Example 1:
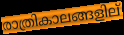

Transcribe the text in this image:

രാത്രികാലങ്ങളില്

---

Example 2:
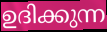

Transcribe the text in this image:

ഉദിക്കുന്ന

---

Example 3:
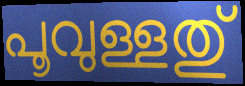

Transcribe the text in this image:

പൂവുള്ളതു്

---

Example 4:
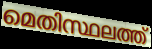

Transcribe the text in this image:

മെതിസ്ഥലത്ത്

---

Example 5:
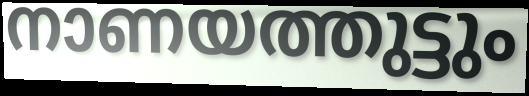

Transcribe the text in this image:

നാണയത്തുട്ടും